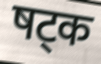
षट्क